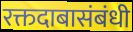
रक्तदाबासंबंधी